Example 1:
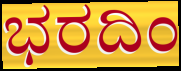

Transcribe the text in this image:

ಭರದಿಂ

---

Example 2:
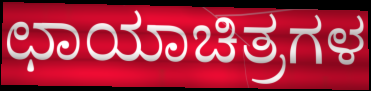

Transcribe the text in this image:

ಛಾಯಾಚಿತ್ರಗಳ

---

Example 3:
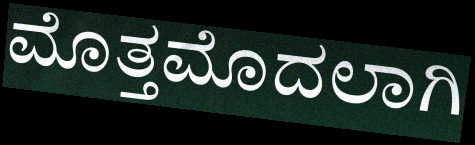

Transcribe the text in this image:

ಮೊತ್ತಮೊದಲಾಗಿ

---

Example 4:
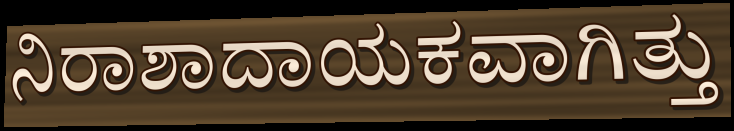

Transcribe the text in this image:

ನಿರಾಶಾದಾಯಕವಾಗಿತ್ತು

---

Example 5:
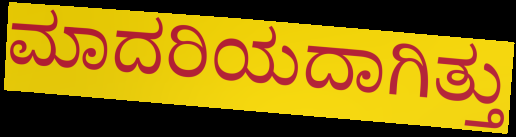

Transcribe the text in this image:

ಮಾದರಿಯದಾಗಿತ್ತು